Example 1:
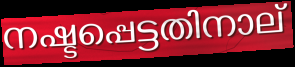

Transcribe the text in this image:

നഷ്ടപ്പെട്ടതിനാല്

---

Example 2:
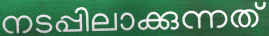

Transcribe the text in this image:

നടപ്പിലാക്കുന്നത്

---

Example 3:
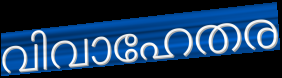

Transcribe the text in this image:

വിവാഹേതര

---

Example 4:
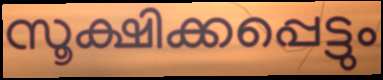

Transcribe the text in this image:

സൂക്ഷിക്കപ്പെട്ടും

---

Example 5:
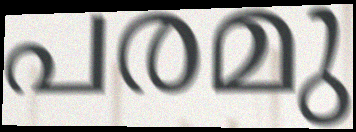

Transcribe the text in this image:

പരമു